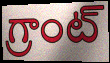
గ్రాంట్